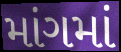
માંગમાં